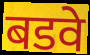
बडवे